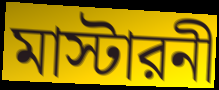
মাস্টারনী